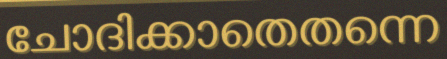
ചോദിക്കാതെതന്നെ